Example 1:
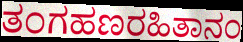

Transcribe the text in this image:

ತಂಗಹಣರಹಿತಾನಂ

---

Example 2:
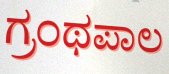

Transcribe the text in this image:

ಗ್ರಂಥಪಾಲ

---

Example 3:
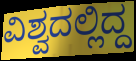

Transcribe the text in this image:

ವಿಶ್ವದಲ್ಲಿದ್ದ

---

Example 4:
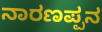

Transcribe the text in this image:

ನಾರಣಪ್ಪನ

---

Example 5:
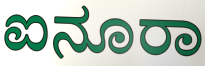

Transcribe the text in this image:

ಐನೂರಾ